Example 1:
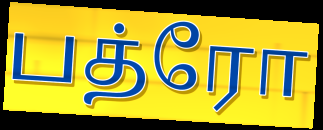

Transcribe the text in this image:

பத்ரோ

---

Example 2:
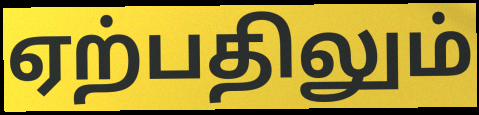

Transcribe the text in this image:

ஏற்பதிலும்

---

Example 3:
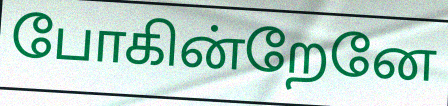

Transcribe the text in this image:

போகின்றேனே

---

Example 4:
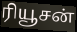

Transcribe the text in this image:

ரியூசன்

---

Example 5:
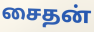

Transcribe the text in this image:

சைதன்